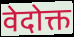
वेदोक्त